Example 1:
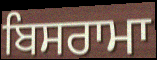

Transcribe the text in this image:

ਬਿਸਰਾਮਾ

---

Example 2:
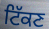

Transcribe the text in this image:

ਟਿੱਕਣ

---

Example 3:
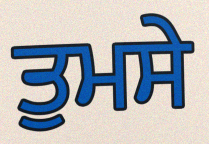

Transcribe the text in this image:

ਤੁਮਸੇ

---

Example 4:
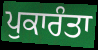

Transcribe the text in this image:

ਪੁਕਾਰੰਤਾ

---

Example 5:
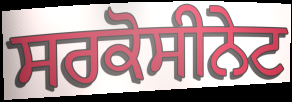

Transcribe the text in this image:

ਸਰਕੋਸੀਨੇਟ